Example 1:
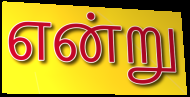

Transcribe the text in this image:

என்று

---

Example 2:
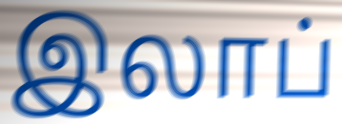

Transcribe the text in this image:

இலாப்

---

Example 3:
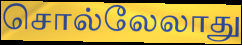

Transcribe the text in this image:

சொல்லேலாது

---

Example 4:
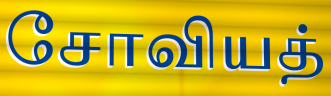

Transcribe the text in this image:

சோவியத்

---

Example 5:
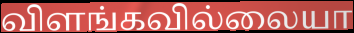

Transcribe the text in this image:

விளங்கவில்லையா